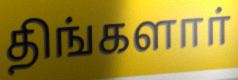
திங்களார்